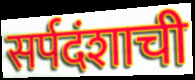
सर्पदंशाची